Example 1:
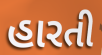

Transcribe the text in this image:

હારતી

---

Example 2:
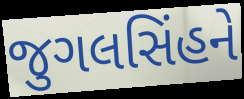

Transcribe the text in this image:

જુગલસિંહને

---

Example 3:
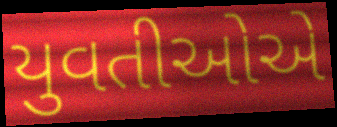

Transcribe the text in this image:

યુવતીઓએ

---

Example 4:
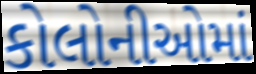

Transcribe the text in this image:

કોલોનીઓમાં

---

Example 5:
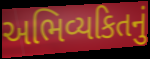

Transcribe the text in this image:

અભિવ્યકિતનું